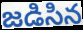
జడిసిన